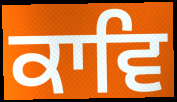
ਕਾਵਿ